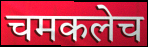
चमकलेच